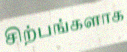
சிற்பங்களாக